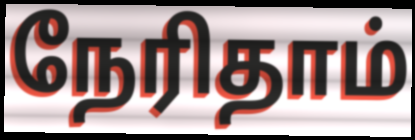
நேரிதாம்